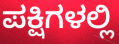
ಪಕ್ಷಿಗಳಲ್ಲಿ